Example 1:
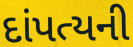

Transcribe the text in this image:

દાંપત્યની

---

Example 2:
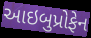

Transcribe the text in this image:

આઇબુપ્રોફેન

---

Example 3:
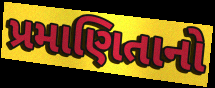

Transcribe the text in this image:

પ્રમાણિતાનો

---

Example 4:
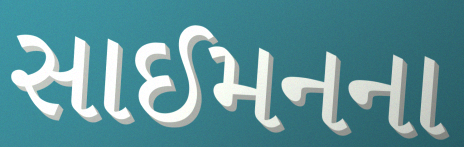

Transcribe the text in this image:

સાઈમનના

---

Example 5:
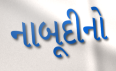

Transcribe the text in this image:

નાબૂદીનો